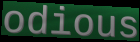
odious